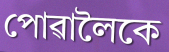
পোৱালৈকে